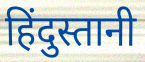
हिंदुस्तानी